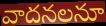
వాదనలనూ